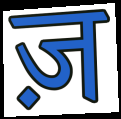
ज़